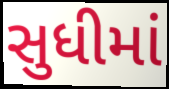
સુધીમાં